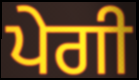
ਪੇਗੀ